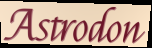
Astrodon